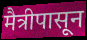
मैत्रीपासून